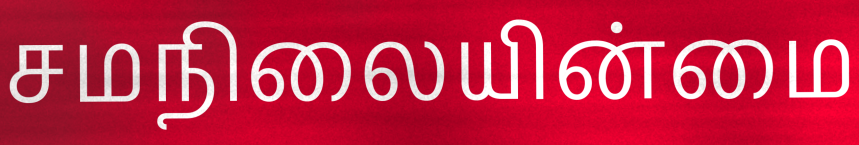
சமநிலையின்மை